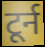
टूर्न